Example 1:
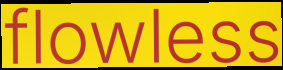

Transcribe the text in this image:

flowless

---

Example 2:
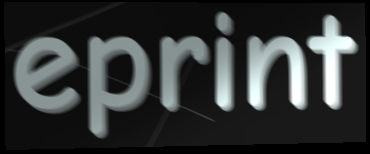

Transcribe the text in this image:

eprint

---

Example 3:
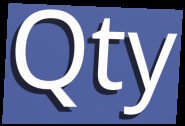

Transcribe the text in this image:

Qty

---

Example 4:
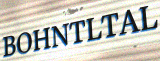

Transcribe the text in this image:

BOHNTLTAL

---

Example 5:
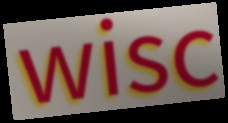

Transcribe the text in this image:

wisc